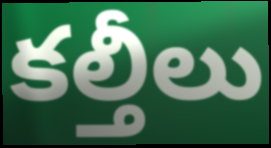
కల్తీలు